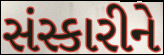
સંસ્કારીને